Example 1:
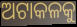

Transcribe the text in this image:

ଅଟାକଳକୁ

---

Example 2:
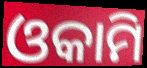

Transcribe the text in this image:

ଓକାମି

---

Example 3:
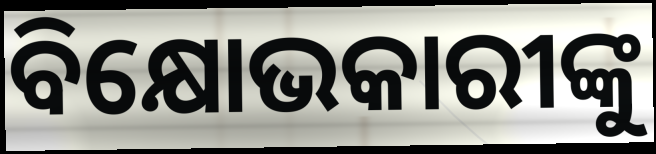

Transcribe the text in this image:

ବିକ୍ଷୋଭକାରୀଙ୍କୁ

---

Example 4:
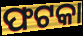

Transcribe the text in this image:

ଫଟକା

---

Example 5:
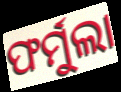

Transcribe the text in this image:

ଫର୍ମୁଲା